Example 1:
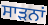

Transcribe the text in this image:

ਸਾੜਨਾਂ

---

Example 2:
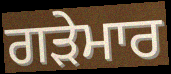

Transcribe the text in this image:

ਗੜੇਮਾਰ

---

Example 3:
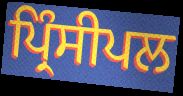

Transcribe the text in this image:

ਪ੍ਰਿੰਸੀਪਲ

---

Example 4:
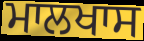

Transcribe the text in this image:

ਮਾਲਖਾਸ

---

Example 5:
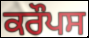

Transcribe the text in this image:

ਕਰੌਪਸ